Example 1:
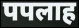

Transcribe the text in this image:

पपलाह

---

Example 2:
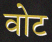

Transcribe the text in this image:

वोट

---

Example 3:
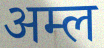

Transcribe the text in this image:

अम्ल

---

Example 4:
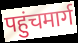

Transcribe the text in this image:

पहुंचमार्ग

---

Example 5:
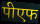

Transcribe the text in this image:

पीएफ